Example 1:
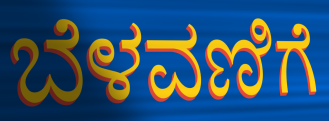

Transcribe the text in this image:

ಬೆಳವಣಿಗೆ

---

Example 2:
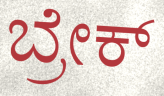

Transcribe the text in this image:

ಬ್ರೇಕ್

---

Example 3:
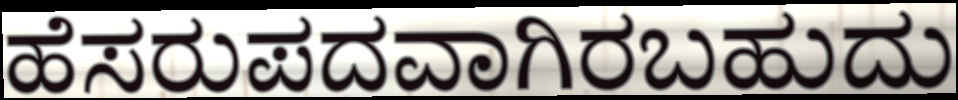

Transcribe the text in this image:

ಹೆಸರುಪದವಾಗಿರಬಹುದು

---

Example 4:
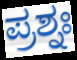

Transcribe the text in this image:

ಪ್ರಶ್ನಃ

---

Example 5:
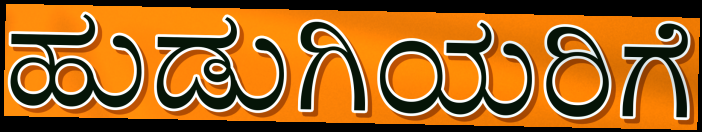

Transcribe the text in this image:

ಹುಡುಗಿಯರಿಗೆ